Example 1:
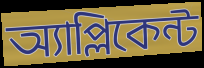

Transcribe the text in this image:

অ্যাপ্লিকেন্ট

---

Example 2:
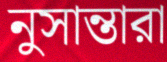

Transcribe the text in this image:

নুসান্তারা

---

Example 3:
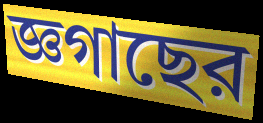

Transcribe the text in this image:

জ্ঞগাছের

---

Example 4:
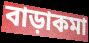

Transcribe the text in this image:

বাড়াকমা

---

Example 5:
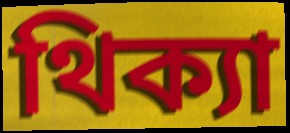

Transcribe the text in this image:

থিক্যা